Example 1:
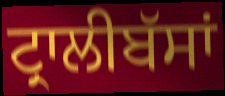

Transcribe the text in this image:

ਟ੍ਰਾਲੀਬੱਸਾਂ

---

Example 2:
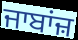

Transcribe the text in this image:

ਜਾਬਾਂਜ਼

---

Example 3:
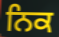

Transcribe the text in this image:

ਨਿਕ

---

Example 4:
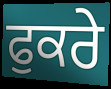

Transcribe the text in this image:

ਫੁਕਰੇ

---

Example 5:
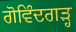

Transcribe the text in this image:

ਗੋਵਿੰਦਗੜ੍ਹ